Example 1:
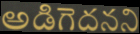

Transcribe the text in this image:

అడిగెదనని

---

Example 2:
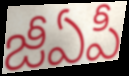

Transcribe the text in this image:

జీఏపీ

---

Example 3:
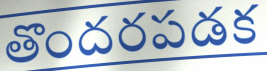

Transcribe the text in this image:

తొందరపడక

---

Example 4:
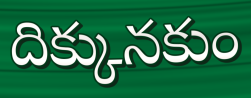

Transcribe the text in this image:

దిక్కునకుం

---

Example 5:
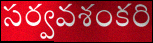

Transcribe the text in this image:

సర్వవశంకరి